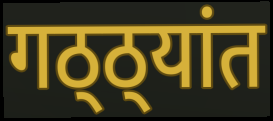
गठ्ठ्यांत